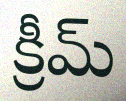
క్రీమ్